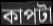
কাপটা